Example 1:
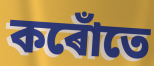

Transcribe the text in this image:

কৰোঁতে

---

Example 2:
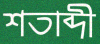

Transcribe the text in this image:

শতাব্দী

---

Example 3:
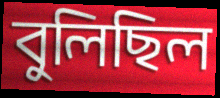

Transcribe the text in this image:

বুলিছিল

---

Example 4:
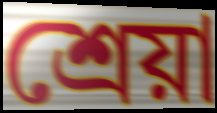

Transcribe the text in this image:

শ্ৰেয়া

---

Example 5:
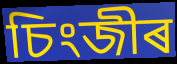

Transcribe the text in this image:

চিংজীৰ